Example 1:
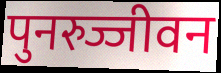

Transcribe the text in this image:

पुनरुज्जीवन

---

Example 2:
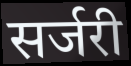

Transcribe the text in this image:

सर्जरी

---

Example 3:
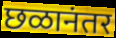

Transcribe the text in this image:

छळानंतर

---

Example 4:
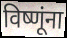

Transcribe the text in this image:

विष्णूंना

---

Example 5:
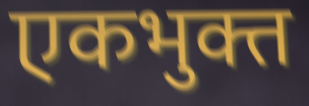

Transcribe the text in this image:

एकभुक्त